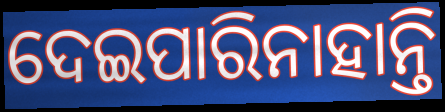
ଦେଇପାରିନାହାନ୍ତି